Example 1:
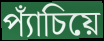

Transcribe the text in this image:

প্যাঁচিয়ে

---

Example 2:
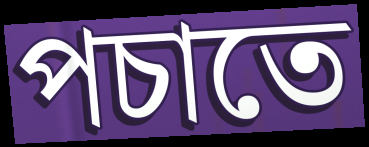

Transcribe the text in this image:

পচাতে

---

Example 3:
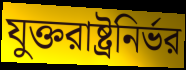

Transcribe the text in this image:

যুক্তরাষ্ট্রনির্ভর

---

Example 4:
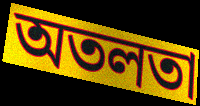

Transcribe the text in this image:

অতলতা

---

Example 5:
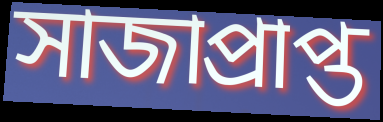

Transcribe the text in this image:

সাজাপ্রাপ্ত